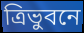
ত্রিভুবনে